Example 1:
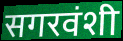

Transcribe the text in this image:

सगरवंशी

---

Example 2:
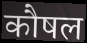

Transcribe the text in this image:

कौषल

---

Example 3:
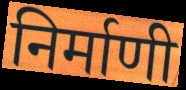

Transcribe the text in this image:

निर्माणी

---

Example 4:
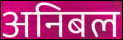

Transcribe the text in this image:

अनिबल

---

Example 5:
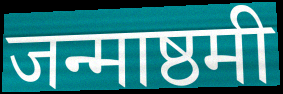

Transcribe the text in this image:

जन्माष्ठमी